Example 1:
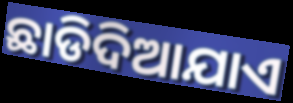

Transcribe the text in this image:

ଛାଡିଦିଆଯାଏ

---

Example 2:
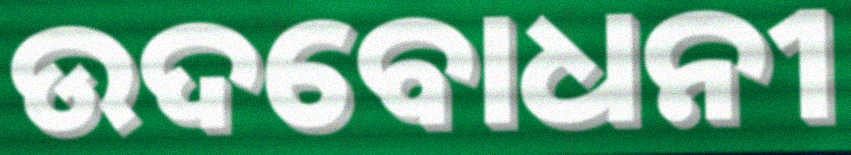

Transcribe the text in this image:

ଉଦବୋଧନୀ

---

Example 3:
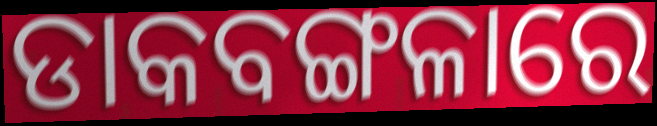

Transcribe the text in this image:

ଡାକବଙ୍ଗଳାରେ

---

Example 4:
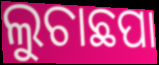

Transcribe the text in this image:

ଲୁଚାଛପା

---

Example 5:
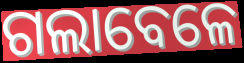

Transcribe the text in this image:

ଗଲାବେଳେ